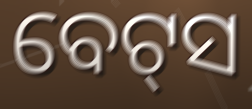
ବେଟ୍‍ସ